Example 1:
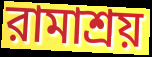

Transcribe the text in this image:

রামাশ্রয়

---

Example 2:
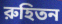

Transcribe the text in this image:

রুহিতন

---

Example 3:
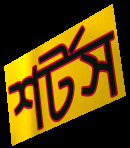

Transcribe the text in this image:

শর্টস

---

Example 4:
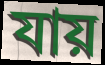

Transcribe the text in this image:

যায়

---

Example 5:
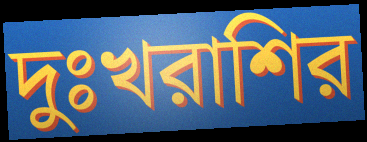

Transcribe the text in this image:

দুঃখরাশির